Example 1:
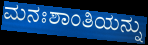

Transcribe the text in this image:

ಮನಃಶಾಂತಿಯನ್ನು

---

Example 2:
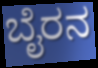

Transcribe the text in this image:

ಬೈರನ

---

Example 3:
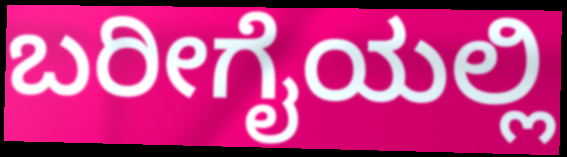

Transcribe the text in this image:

ಬರೀಗೈಯಲ್ಲಿ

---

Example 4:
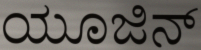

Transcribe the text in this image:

ಯೂಜಿನ್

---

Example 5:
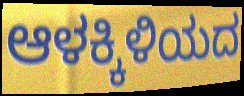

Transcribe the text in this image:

ಆಳಕ್ಕಿಳಿಯದ